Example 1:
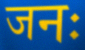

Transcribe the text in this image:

जनः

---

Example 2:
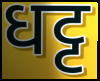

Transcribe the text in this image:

धट्ट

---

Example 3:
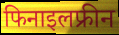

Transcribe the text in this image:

फिनाइलफ्रीन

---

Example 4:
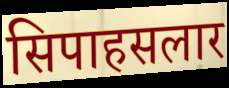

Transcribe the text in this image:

सिपाहसलार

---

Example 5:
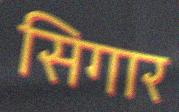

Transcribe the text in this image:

सिगार